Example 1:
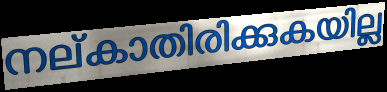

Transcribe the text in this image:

നല്‌കാതിരിക്കുകയില്ല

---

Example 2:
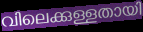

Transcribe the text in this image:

വിലെക്കുള്ളതായി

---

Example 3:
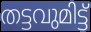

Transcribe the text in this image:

തട്ടവുമിട്ട്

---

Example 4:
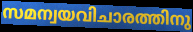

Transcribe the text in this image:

സമന്വയവിചാരത്തിനു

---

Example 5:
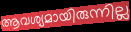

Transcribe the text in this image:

ആവശ്യമായിരുന്നില്ല